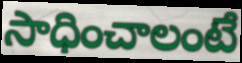
సాధించాలంటే